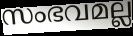
സംഭവമല്ല